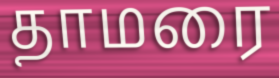
தாமரை